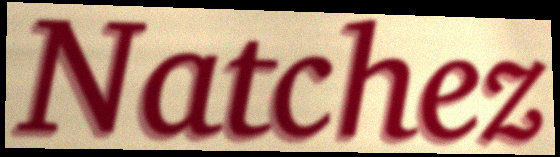
Natchez